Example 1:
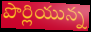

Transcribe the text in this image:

పొర్లియున్న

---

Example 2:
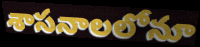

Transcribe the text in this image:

శాసనాలలోనూ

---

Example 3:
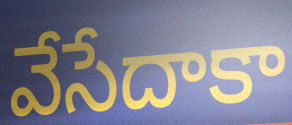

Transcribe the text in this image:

వేసేదాకా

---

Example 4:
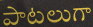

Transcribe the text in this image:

పాటలుగా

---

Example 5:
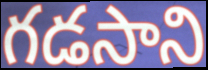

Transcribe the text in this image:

గడసాని